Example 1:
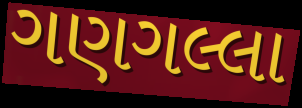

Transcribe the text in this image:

ગણગલ્લા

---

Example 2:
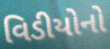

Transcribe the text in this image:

વિડીયોનો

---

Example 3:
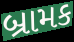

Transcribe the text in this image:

બ્રામક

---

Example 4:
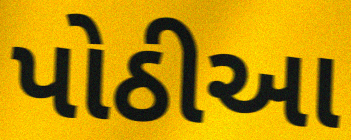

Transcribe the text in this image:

પોઠીઆ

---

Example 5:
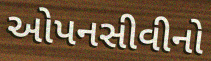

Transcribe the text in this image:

ઓપનસીવીનો